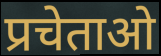
प्रचेताओ